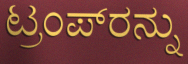
ಟ್ರಂಪ್‌ರನ್ನು